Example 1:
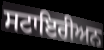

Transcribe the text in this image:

ਸਟਾਇਰੀਅਨ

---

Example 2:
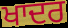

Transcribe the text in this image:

ਖਾਦਰ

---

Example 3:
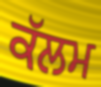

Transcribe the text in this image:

ਕੱਲਮ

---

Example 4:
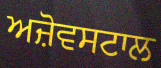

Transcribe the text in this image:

ਅਜ਼ੋਵਸਟਾਲ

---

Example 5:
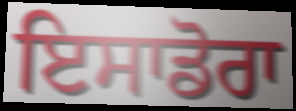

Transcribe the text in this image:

ਇਸਾਡੋਰਾ